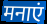
मनाएं